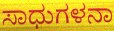
ಸಾಧುಗಳನಾ